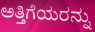
ಅತ್ತಿಗೆಯರನ್ನು